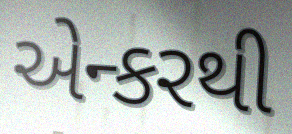
એન્કરથી